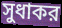
সুধাকর